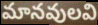
మానవులవి